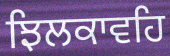
ਝਿਲਕਾਵਹਿ